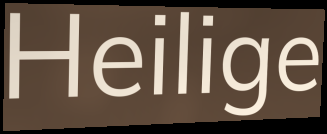
Heilige